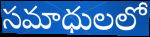
సమాధులలో